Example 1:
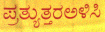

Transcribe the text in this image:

ಪ್ರತ್ಯುತ್ತರಅಳಿಸಿ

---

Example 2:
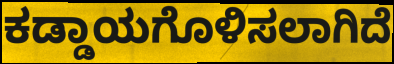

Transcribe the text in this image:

ಕಡ್ಡಾಯಗೊಳಿಸಲಾಗಿದೆ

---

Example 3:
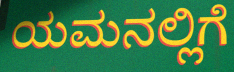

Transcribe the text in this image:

ಯಮನಲ್ಲಿಗೆ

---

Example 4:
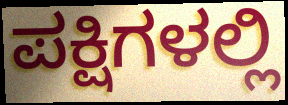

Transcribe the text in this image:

ಪಕ್ಷಿಗಳಲ್ಲಿ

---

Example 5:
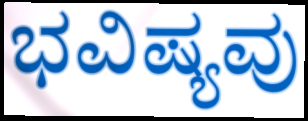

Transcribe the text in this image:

ಭವಿಷ್ಯವು